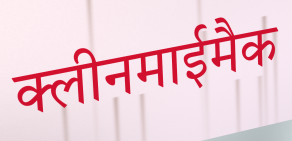
क्लीनमाईमैक